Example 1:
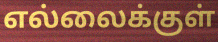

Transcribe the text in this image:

எல்லைக்குள்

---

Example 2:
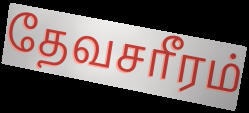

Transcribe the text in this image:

தேவசரீரம்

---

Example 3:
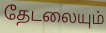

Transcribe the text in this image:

தேடலையும்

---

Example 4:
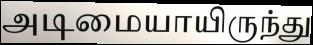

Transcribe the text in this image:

அடிமையாயிருந்து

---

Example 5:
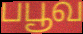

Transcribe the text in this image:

பபூவ